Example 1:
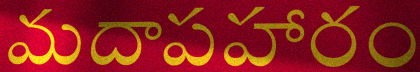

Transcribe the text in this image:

మదాపహారం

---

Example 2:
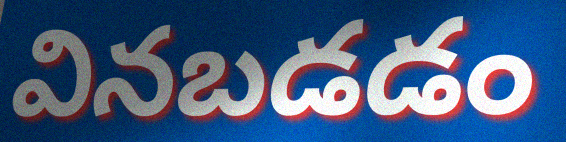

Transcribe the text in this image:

వినబడడం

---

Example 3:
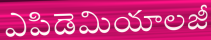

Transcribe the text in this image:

ఎపిడెమియాలజీ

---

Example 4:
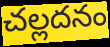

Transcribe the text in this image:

చల్లదనం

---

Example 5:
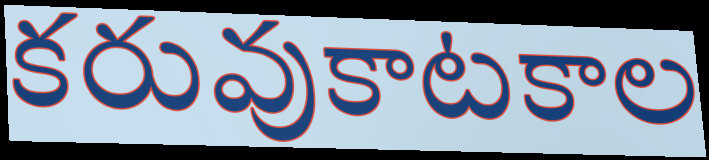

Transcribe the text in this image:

కరువుకాటకాల